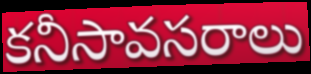
కనీసావసరాలు